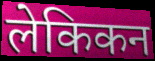
लेकिकन